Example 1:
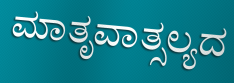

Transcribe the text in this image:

ಮಾತೃವಾತ್ಸಲ್ಯದ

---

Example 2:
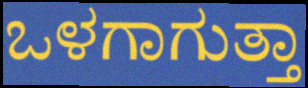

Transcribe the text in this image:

ಒಳಗಾಗುತ್ತಾ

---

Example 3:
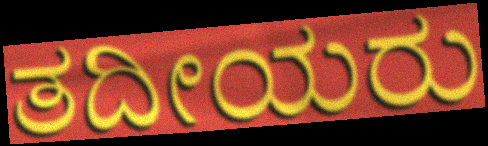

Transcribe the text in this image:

ತದೀಯರು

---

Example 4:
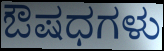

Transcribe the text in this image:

ಔಷಧಗಳು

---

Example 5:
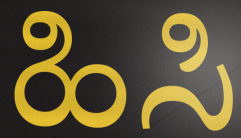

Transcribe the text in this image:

ಹಿಸಿ